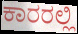
ಕಾರರಲ್ಲಿ